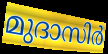
മുദാസിർ